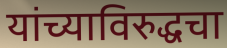
यांच्याविरुद्धचा